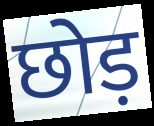
छोड़